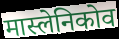
मास्लेनिकोव